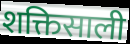
शक्तिसाली